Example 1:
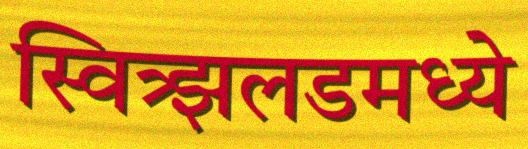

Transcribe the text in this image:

स्वित्र्झलडमध्ये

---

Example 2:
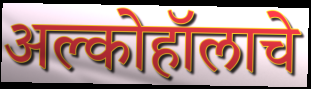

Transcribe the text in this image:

अल्कोहॉलाचे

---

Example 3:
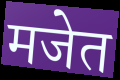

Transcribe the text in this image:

मजेत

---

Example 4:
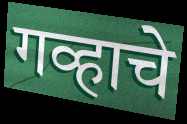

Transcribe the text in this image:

गव्हाचे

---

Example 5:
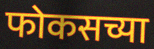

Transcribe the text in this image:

फोकसच्या